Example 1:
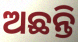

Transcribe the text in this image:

ଅଛନ୍ତି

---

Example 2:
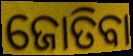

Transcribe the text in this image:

ଜୋତିବା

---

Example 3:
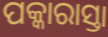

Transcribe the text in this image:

ପକ୍କାରାସ୍ତା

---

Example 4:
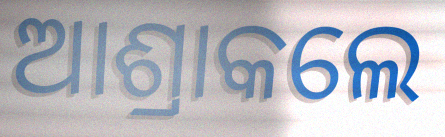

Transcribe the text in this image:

ଆଶ୍ରାକଲେ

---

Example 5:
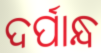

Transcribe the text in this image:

ଦର୍ପାନ୍ଧ